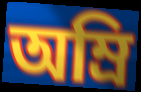
অম্রি